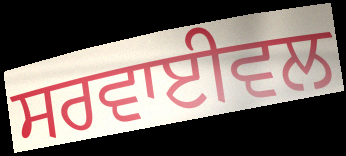
ਸਰਵਾਈਵਲ